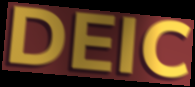
DEIC